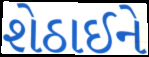
શેઠાઈને